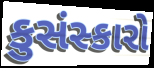
કુસંસ્કારો